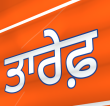
ਤਾਰੇਫ਼